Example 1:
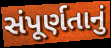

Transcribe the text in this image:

સંપૂર્ણતાનું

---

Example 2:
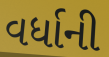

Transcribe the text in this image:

વર્ધાની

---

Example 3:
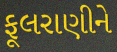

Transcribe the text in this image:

ફૂલરાણીને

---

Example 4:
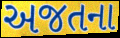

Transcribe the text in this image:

અજતના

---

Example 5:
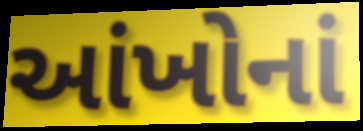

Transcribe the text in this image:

આંખોનાં